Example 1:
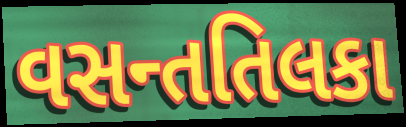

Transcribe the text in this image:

વસન્તતિલકા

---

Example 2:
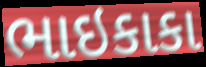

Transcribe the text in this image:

ભાઇકાકા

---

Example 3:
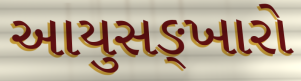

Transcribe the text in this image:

આયુસઙ્ખારો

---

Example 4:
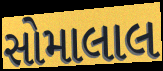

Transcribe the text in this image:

સોમાલાલ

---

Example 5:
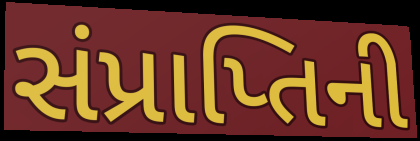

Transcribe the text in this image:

સંપ્રાપ્તિની